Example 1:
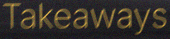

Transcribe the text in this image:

Takeaways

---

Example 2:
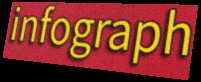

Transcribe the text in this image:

infograph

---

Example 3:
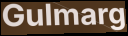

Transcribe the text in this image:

Gulmarg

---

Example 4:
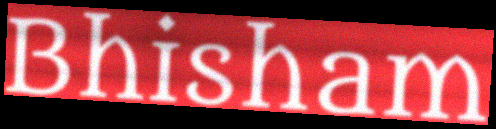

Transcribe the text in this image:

Bhisham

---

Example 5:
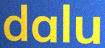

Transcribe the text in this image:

dalu